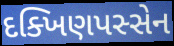
દક્ખિણપસ્સેન